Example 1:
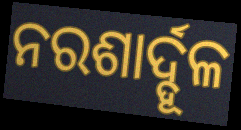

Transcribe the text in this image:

ନରଶାର୍ଦ୍ଦୂଳ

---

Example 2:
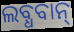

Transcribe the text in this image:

ଲବ୍ଧବାନ୍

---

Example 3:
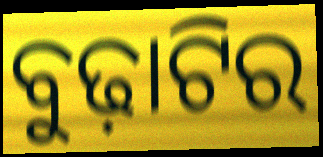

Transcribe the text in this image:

ବୁଢ଼ାଟିର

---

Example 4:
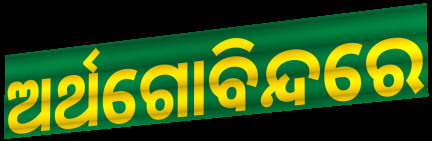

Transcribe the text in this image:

ଅର୍ଥଗୋବିନ୍ଦରେ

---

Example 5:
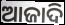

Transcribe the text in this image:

ଆଜାଦି